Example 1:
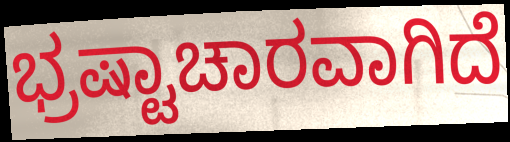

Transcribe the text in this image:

ಭ್ರಷ್ಟಾಚಾರವಾಗಿದೆ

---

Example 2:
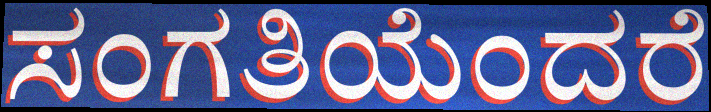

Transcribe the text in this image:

ಸಂಗತಿಯೆಂದರೆ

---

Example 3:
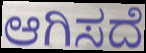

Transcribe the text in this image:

ಆಗಿಸದೆ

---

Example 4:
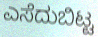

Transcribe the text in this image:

ಎಸೆದುಬಿಟ್ಟ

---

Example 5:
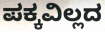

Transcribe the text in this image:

ಪಕ್ಕವಿಲ್ಲದ